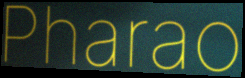
Pharao